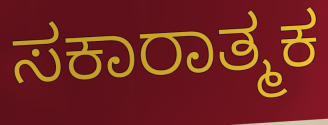
ಸಕಾರಾತ್ಮಕ